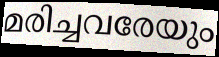
മരിച്ചവരേയും